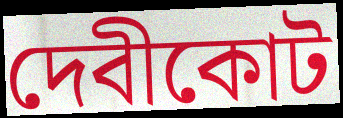
দেবীকোট